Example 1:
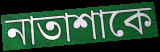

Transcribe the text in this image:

নাতাশাকে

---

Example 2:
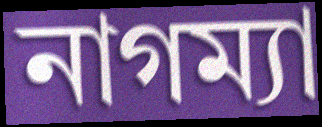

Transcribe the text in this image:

নাগম্যা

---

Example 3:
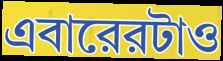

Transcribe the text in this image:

এবারেরটাও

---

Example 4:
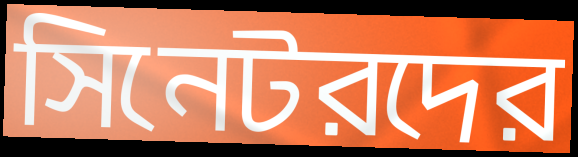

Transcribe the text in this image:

সিনেটরদের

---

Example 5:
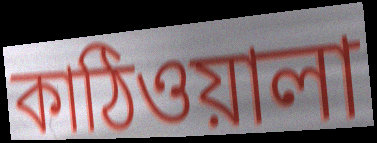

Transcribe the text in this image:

কাঠিওয়ালা